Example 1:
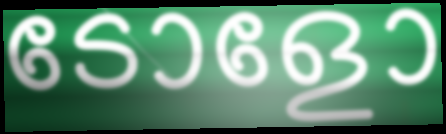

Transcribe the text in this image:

ടോളോ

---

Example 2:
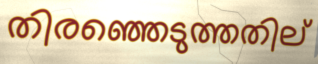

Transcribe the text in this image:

തിരഞ്ഞെടുത്തതില്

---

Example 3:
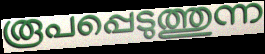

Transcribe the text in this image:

രൂപപ്പെടുത്തുന്ന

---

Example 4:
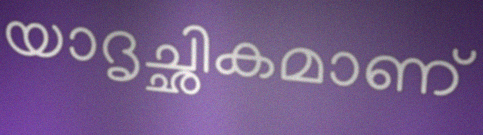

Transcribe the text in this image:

യാദൃച്ഛികമാണ്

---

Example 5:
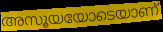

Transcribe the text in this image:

അസൂയയോടെയാണ്